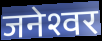
जनेश्वर